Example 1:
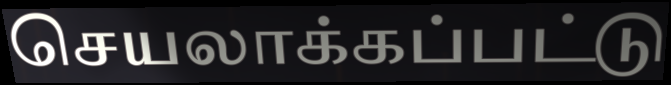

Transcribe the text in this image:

செயலாக்கப்பட்டு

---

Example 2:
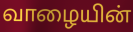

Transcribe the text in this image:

வாழையின்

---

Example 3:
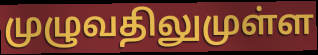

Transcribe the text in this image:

முழுவதிலுமுள்ள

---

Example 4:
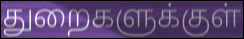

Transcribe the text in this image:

துறைகளுக்குள்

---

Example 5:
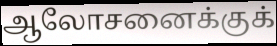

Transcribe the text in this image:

ஆலோசனைக்குக்